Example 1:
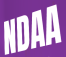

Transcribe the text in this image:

NDAA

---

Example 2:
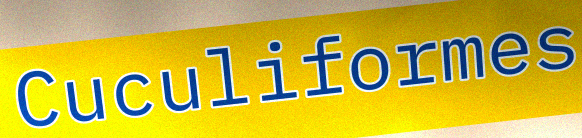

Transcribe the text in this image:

Cuculiformes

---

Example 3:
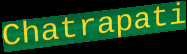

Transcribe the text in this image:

Chatrapati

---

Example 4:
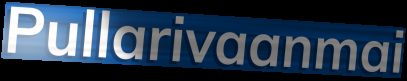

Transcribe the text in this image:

Pullarivaanmai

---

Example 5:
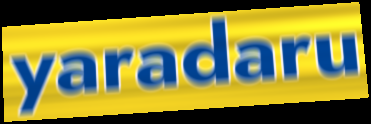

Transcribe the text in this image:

yaradaru